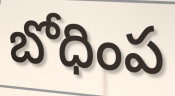
బోధింప